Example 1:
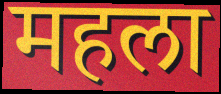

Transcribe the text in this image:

महला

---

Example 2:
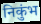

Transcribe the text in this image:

निकुंभ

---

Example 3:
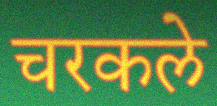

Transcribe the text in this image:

चरकले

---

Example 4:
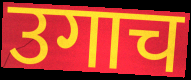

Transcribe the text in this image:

उगाच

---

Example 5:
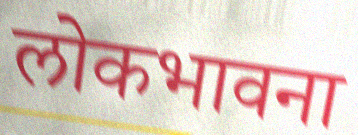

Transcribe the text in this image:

लोकभावना